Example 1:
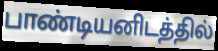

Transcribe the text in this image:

பாண்டியனிடத்தில்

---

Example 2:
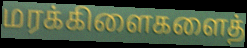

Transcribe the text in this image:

மரக்கிளைகளைத்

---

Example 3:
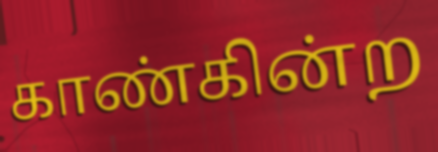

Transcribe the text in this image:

காண்கின்ற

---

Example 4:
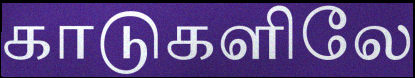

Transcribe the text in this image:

காடுகளிலே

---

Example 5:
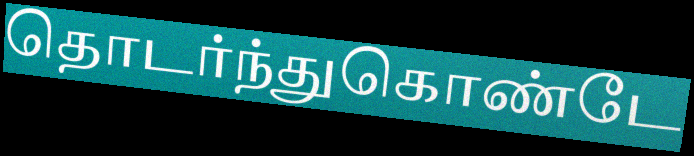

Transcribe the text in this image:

தொடர்ந்துகொண்டே